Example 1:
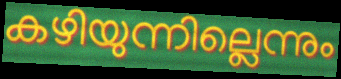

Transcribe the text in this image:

കഴിയുന്നില്ലെന്നും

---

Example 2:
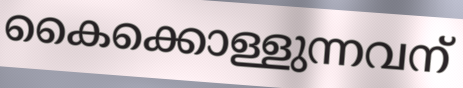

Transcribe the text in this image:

കൈക്കൊള്ളുന്നവന്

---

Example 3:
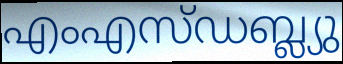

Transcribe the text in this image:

എംഎസ്ഡബ്ല്യു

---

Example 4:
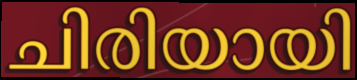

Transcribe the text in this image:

ചിരിയായി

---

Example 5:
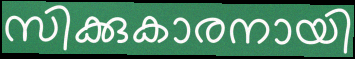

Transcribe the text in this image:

സിക്കുകാരനായി